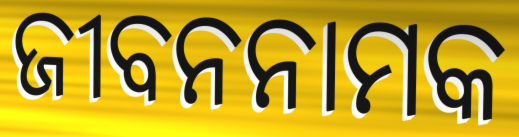
ଜୀବନନାମକ